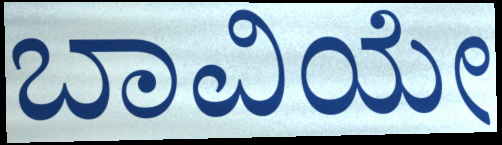
ಬಾವಿಯೇ